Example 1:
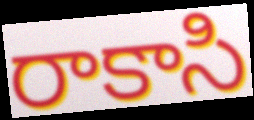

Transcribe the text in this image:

రాకాసి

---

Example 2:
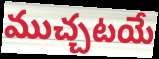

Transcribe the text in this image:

ముచ్చటయే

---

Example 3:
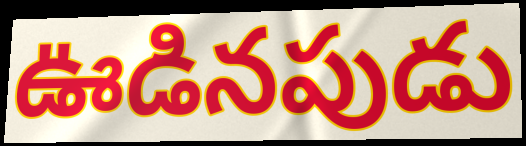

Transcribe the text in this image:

ఊడినపుడు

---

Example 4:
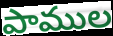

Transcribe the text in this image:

పాముల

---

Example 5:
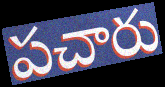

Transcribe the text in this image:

పచారు